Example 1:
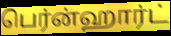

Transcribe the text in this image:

பெர்ன்ஹார்ட்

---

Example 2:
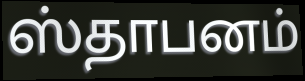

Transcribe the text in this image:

ஸ்தாபனம்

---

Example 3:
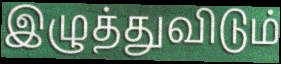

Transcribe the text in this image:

இழுத்துவிடும்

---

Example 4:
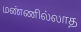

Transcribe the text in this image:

மண்ணில்லாத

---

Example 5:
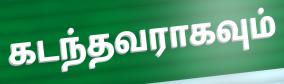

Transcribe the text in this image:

கடந்தவராகவும்